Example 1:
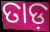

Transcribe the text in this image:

ତାଡ଼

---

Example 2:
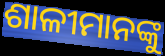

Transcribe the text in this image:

ଶାଳୀମାନଙ୍କୁ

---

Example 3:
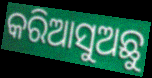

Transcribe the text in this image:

କରିଆସୁଅଛୁ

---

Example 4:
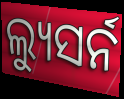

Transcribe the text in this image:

ଲ୍ୟୁସର୍ନ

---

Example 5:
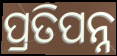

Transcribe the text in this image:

ପ୍ରତିପନ୍ନ